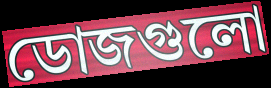
ডোজগুলো